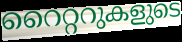
റൈറ്ററുകളുടെ